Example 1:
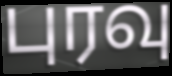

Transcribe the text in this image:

புரவு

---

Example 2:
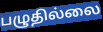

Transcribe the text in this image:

பழுதில்லை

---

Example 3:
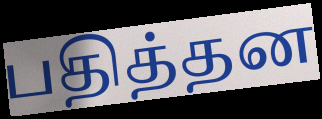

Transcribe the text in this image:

பதித்தன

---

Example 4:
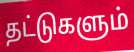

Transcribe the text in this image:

தட்டுகளும்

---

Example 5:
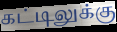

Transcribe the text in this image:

கட்டிலுக்கு